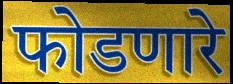
फोडणारे